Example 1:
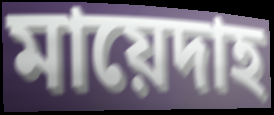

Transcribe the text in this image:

মায়েদাহ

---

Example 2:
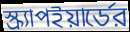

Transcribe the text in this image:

স্ক্র্যাপইয়ার্ডের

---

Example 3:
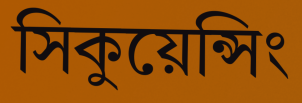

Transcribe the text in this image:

সিকুয়েন্সিং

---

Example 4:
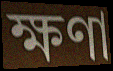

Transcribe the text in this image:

ক্ষণা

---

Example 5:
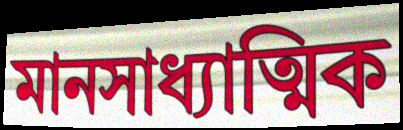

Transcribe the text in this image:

মানসাধ্যাত্মিক